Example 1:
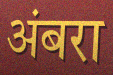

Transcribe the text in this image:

अंबरा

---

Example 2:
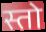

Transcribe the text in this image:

स्तो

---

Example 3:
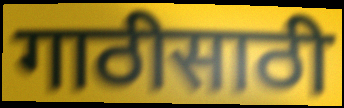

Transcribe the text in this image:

गाठीसाठी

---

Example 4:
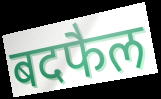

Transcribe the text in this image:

बदफैल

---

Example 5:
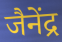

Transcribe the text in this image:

जैनेंद्र